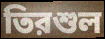
তিরশুল